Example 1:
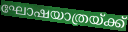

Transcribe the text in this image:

ഘോഷയാത്രയ്ക്ക്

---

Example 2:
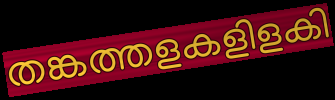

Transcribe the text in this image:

തങ്കത്തളകളിളകി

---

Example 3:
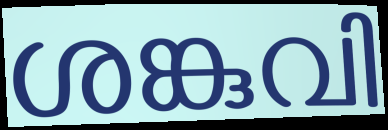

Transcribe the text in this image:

ശങ്കുവി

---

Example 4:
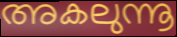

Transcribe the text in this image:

അകലുന്നൂ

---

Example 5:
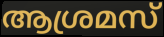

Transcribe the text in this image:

ആശ്രമസ്